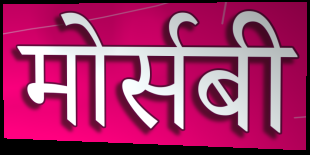
मोर्सबी